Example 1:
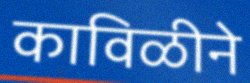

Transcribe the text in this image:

काविळीने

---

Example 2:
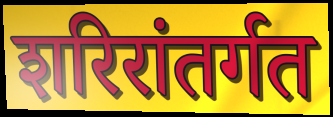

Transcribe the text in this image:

शरिरांतर्गत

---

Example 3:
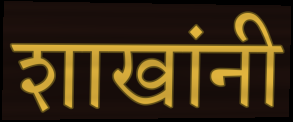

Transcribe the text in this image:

शाखांनी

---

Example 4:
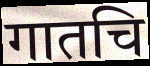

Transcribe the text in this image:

गातचि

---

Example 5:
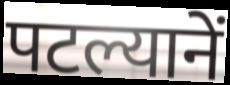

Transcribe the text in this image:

पटल्यानें